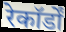
रेकॉर्डों